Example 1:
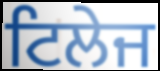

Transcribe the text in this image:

ਟਿਲੇਜ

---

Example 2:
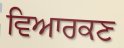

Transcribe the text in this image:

ਵਿਆਰਕਣ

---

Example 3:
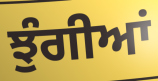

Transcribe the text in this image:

ਝੁੰਗੀਆਂ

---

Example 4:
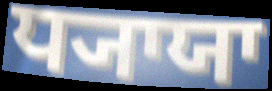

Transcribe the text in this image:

ਧ੍ਯਾਯਾ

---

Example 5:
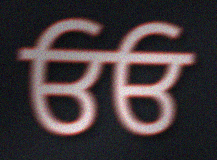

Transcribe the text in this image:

ਓਓ